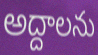
అద్దాలను